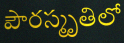
పౌరస్మృతిలో